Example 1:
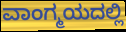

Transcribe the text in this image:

ವಾಂಗ್ಮಯದಲ್ಲಿ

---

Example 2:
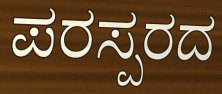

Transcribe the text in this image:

ಪರಸ್ಪರದ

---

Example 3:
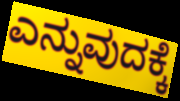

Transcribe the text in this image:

ಎನ್ನುವುದಕ್ಕೆ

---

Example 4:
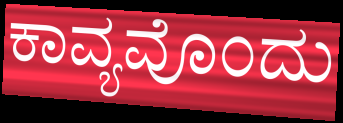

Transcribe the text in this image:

ಕಾವ್ಯವೊಂದು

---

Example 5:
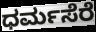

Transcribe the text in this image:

ಧರ್ಮಸೆರೆ